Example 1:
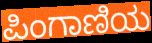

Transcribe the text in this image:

ಪಿಂಗಾಣಿಯ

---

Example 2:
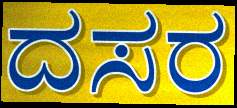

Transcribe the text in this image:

ದಸರ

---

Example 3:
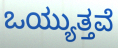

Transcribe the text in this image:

ಒಯ್ಯುತ್ತವೆ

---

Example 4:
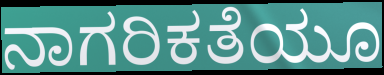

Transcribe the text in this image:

ನಾಗರಿಕತೆಯೂ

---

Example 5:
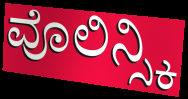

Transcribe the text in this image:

ವೊಲಿನ್ಸ್ಕಿ